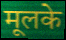
मूलके